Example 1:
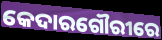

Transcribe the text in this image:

କେଦାରଗୌରୀରେ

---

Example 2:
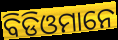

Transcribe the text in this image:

ବିଡିଓମାନେ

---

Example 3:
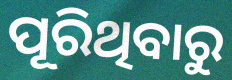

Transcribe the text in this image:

ପୂରିଥିବାରୁ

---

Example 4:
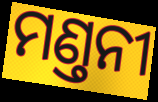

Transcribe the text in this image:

ମଣ୍ତନୀ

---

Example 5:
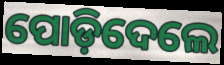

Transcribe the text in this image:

ପୋଡ଼ିଦେଲେ